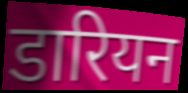
डारियन